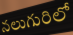
నలుగురిలో